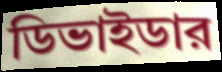
ডিভাইডার